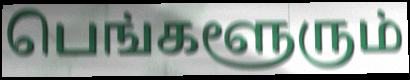
பெங்களூரும்